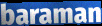
baraman